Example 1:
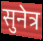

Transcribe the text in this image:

सुनेत्र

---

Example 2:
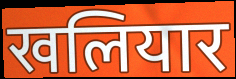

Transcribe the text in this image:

खलियार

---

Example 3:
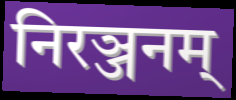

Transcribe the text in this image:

निरञ्जनम्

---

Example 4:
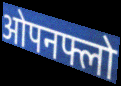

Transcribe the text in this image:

ओपनफ्लो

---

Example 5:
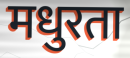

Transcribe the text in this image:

मधुरता